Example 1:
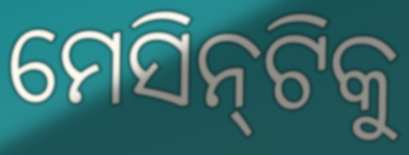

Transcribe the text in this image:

ମେସିନ୍‍ଟିକୁ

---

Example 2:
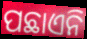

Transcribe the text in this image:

ପଛାଏନି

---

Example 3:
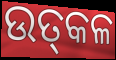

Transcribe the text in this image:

ଉତ୍‌କଳ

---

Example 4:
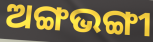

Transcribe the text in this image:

ଅଙ୍ଗଭଙ୍ଗୀ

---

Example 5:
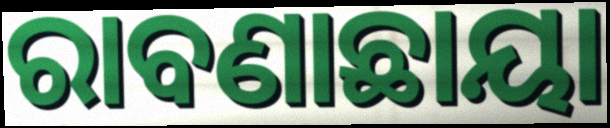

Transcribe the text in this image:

ରାବଣାଛାୟା